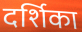
दर्शिका